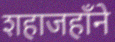
शहाजहाँने